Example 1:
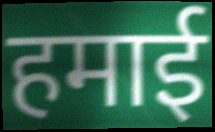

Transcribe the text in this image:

हमाई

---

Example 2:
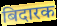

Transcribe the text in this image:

बिदारक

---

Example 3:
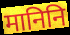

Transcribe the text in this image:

मानिनि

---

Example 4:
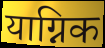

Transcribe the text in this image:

याग्निक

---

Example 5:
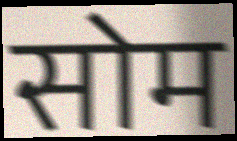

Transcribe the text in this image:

सोम